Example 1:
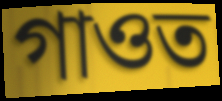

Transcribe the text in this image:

গাওত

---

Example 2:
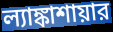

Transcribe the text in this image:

ল্যাঙ্কাশায়ার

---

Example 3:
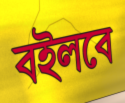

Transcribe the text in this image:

বইলবে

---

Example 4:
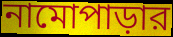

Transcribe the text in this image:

নামোপাড়ার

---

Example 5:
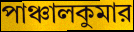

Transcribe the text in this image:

পাঞ্চালকুমার